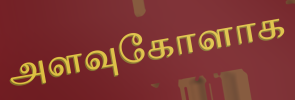
அளவுகோளாக